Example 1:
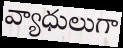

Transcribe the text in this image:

వ్యాధులుగా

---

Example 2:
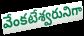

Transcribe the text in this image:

వేంకటేశ్వరునిగా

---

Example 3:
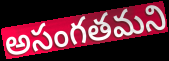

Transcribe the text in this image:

అసంగతమని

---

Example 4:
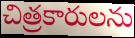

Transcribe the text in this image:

చిత్రకారులను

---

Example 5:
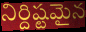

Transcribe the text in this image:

నిర్దిష్టమైన